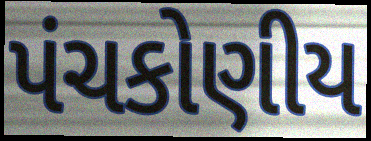
પંચકોણીય